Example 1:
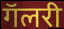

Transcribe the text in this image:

गॅलरी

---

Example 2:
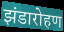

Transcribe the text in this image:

झंडारोहण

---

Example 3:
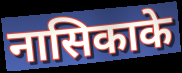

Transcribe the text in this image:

नासिकाके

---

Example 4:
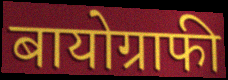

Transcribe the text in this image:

बायोग्राफी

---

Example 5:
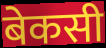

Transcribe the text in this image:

बेकसी